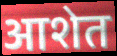
आशेत